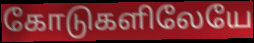
கோடுகளிலேயே